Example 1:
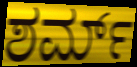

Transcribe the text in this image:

ಶರ್ಮ್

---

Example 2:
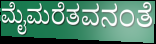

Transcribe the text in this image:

ಮೈಮರೆತವನಂತೆ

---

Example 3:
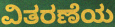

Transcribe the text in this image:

ವಿತರಣೆಯ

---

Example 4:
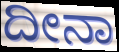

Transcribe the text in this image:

ದೀನಾ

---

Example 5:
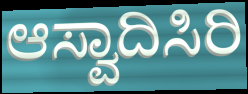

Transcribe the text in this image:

ಆಸ್ವಾದಿಸಿರಿ